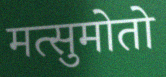
मत्सुमोतो